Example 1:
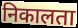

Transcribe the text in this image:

निकालता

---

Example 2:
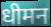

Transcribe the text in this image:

धीमन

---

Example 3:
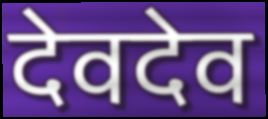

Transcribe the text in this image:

देवदेव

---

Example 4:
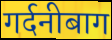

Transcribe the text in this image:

गर्दनीबाग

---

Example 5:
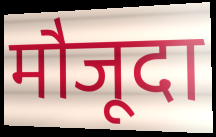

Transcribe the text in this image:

मौजूदा